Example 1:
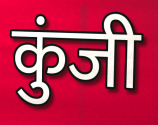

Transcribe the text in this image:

कुंजी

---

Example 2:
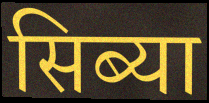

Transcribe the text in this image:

सिब्या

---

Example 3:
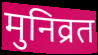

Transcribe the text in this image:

मुनिव्रत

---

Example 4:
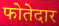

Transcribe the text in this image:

फोतेदार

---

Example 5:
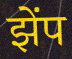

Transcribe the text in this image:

झेंप